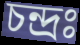
চন্দ্রঃ